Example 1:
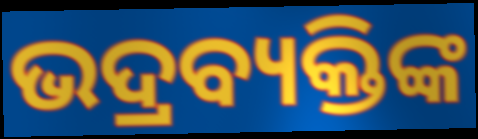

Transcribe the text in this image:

ଭଦ୍ରବ୍ୟକ୍ତିଙ୍କ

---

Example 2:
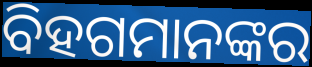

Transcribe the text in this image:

ବିହଗମାନଙ୍କର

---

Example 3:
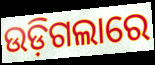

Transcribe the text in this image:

ଉଡ଼ିଗଲାରେ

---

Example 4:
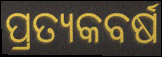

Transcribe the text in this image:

ପ୍ରତ୍ୟକବର୍ଷ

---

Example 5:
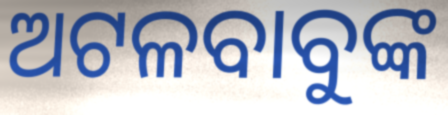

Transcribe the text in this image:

ଅଟଳବାବୁଙ୍କ